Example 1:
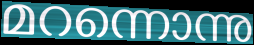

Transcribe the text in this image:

മറന്നൊന്നു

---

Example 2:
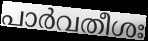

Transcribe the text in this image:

പാർവതീശഃ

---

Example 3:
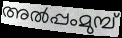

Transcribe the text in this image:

അൽപ്പംമുമ്പ്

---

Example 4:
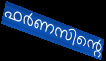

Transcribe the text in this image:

ഫർണസിന്റെ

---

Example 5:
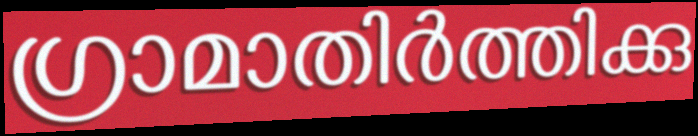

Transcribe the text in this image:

ഗ്രാമാതിർത്തിക്കു